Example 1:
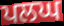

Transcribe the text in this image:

ਪਲਘ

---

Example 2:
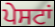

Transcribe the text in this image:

ਪੇਸਟਾਂ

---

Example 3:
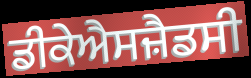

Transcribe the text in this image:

ਡੀਕੇਐਸਜ਼ੈਡਸੀ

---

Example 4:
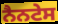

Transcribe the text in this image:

ਨੈਨਟੇਸ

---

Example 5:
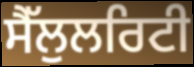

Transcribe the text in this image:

ਸੈੱਲੁਲਰਿਟੀ